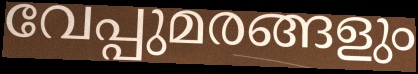
വേപ്പുമരങ്ങളും